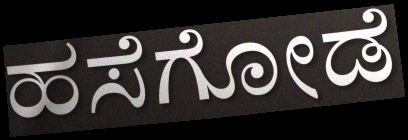
ಹಸೆಗೋಡೆ